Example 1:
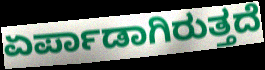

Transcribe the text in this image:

ಏರ್ಪಾಡಾಗಿರುತ್ತದೆ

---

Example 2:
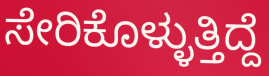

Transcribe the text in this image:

ಸೇರಿಕೊಳ್ಳುತ್ತಿದ್ದೆ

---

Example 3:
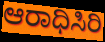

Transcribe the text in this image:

ಆರಾಧಿಸಿರಿ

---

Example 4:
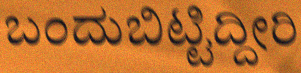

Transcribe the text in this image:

ಬಂದುಬಿಟ್ಟಿದ್ದೀರಿ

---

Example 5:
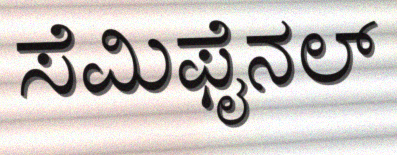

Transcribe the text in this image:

ಸೆಮಿಫೈನಲ್